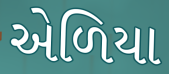
એળિયા